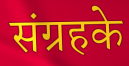
संग्रहके